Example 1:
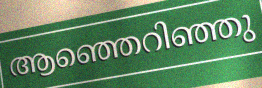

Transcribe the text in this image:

ആഞ്ഞെറിഞ്ഞു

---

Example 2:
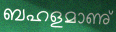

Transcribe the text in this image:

ബഹളമാണു്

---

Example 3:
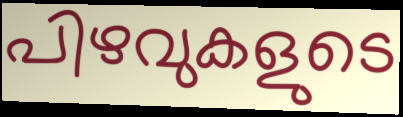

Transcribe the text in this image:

പിഴവുകളുടെ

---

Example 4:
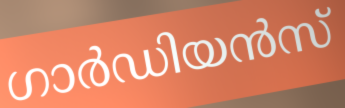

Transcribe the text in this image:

ഗാർഡിയൻസ്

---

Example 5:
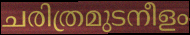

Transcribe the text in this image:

ചരിത്രമുടനീളം